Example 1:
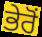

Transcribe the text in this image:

ਭੇਰੋਂ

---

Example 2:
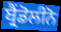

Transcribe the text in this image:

ਬ੍ਰੈਂਡੋਲੀਨੋ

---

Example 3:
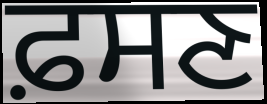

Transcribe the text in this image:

ਫ਼ਸਣ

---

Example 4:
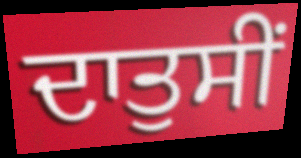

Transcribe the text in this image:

ਦਾਤੁਸੀਂ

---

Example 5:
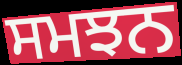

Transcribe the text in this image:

ਸਮਝਨ